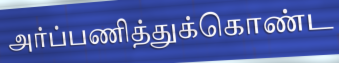
அர்ப்பணித்துக்கொண்ட